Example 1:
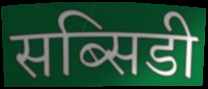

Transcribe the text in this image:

सब्सिडी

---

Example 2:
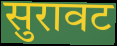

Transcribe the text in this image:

सुरावट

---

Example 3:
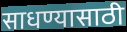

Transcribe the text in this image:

साधण्यासाठी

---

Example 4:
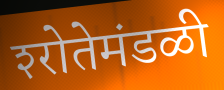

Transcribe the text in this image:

श्रोतेमंडळी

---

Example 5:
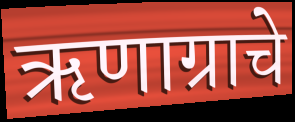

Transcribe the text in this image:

ऋणाग्राचे